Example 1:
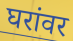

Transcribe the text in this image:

घरांवर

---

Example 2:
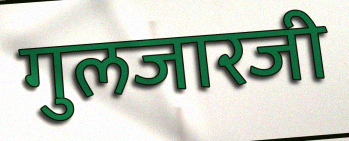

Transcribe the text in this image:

गुलजारजी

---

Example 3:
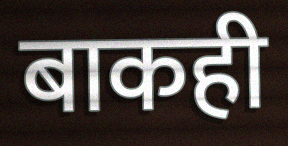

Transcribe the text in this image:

बाकही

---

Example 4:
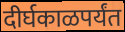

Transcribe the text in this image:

दीर्घकाळपर्यंत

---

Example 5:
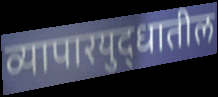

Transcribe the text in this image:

व्यापारयुद्धातील